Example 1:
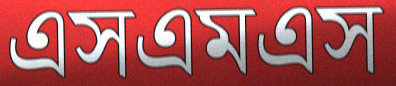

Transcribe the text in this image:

এসএমএস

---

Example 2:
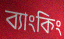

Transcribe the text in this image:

ব্যাংকিং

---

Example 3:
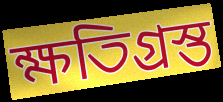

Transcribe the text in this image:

ক্ষতিগ্রস্ত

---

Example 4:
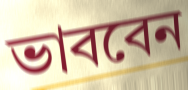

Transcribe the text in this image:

ভাববেন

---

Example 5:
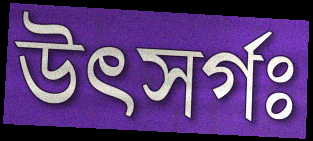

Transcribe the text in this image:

উৎসর্গঃ